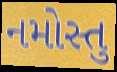
નમોસ્તુ